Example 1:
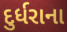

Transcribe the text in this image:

દુર્ધરાના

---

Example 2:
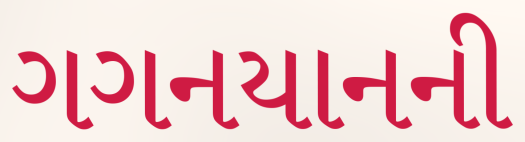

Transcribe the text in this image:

ગગનયાનની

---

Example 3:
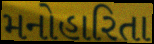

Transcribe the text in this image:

મનોહારિતા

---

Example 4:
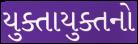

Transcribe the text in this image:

યુક્તાયુક્તનો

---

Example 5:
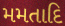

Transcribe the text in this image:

મમતાદિ